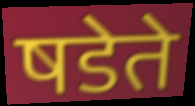
षडेते